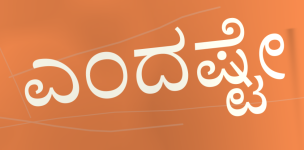
ಎಂದಷ್ಟೇ